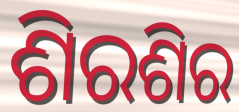
ଶିରଶିର